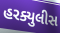
હરક્યુલીસ